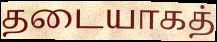
தடையாகத்